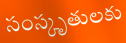
సంస్కృతులకు